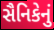
સૈનિકેનું